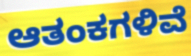
ಆತಂಕಗಳಿವೆ